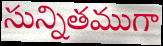
సున్నితముగా